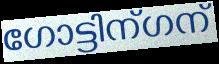
ഗോട്ടിന്ഗന്